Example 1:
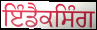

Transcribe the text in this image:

ਇੰਡੈਕਸਿੰਗ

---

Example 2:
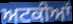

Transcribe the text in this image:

ਅਟਕੀਆਂ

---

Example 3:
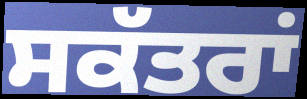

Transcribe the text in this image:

ਸਕੱਤਰਾਂ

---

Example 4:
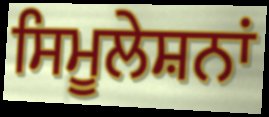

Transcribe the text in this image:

ਸਿਮੂਲੇਸ਼ਨਾਂ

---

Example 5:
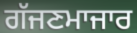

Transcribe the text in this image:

ਗੱਜਣਮਾਜਾਰ